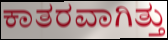
ಕಾತರವಾಗಿತ್ತು